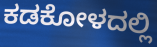
ಕಡಕೋಳದಲ್ಲಿ